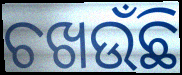
ଚଖଉଁଛି